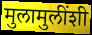
मुलामुलींशी